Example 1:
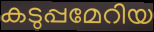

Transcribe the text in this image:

കടുപ്പമേറിയ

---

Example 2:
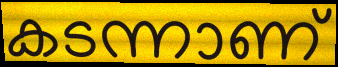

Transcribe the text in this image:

കടന്നാണ്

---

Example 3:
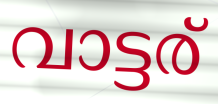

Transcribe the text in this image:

വാട്ടര്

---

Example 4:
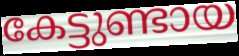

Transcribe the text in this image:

കേട്ടുണ്ടായ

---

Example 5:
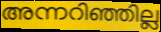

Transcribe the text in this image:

അന്നറിഞ്ഞില്ല